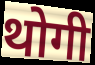
थोगी